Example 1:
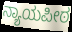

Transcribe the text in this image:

ನ್ಯಾಯಪೀಠ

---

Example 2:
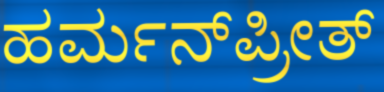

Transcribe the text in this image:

ಹರ್ಮನ್‌ಪ್ರೀತ್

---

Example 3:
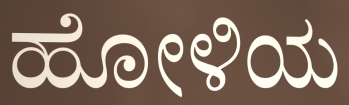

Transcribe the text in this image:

ಹೋಳಿಯ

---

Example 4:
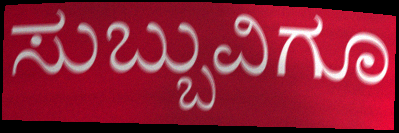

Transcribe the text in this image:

ಸುಬ್ಬುವಿಗೂ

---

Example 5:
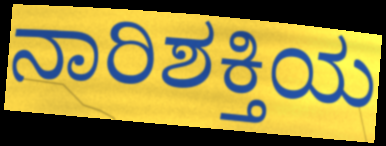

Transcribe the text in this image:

ನಾರಿಶಕ್ತಿಯ